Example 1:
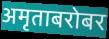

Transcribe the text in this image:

अमृताबरोबर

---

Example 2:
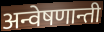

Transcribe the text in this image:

अन्वेषणान्ती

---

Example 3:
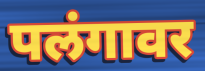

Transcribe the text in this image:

पलंगावर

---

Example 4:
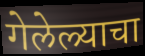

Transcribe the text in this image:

गेलेल्याचा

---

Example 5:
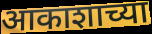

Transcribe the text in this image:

आकाशाच्या